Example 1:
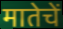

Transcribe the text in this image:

मातेचें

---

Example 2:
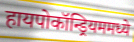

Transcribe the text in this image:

हायपोकॉन्ड्रियममध्ये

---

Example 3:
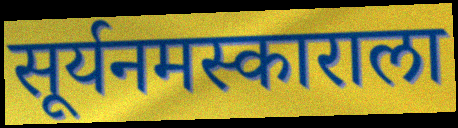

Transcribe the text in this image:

सूर्यनमस्काराला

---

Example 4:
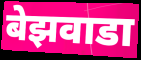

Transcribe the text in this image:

बेझवाडा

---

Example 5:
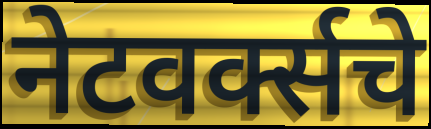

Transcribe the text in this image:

नेटवर्क्सचे